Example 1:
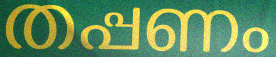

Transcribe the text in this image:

തപ്പണം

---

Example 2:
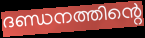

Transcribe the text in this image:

ദണ്ഡനത്തിന്റെ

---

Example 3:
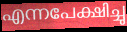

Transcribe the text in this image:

എന്നപേക്ഷിച്ചു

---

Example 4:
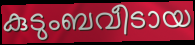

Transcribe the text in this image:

കുടുംബവീടായ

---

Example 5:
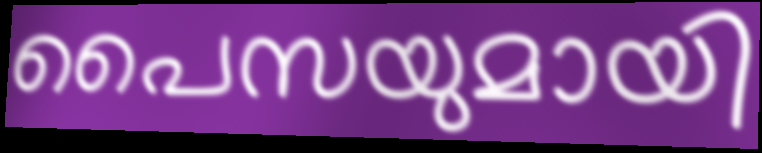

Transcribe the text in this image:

പൈസയുമായി